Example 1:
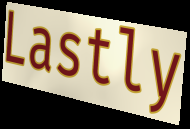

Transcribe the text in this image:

Lastly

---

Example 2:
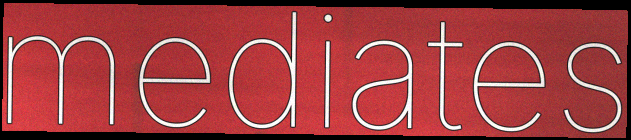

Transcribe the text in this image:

mediates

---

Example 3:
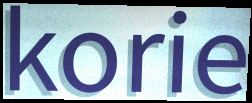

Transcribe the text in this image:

korie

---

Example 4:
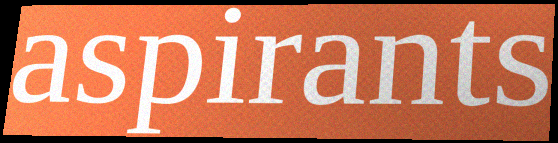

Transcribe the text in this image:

aspirants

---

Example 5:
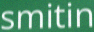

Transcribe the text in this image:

smitin